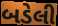
બડેલી